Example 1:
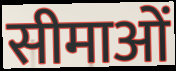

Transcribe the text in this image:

सीमाओं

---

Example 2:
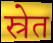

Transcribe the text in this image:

स्रेत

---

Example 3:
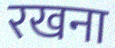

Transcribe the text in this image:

रखना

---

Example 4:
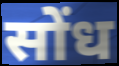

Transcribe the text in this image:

सोंध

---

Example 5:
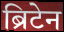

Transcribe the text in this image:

ब्रिटेन